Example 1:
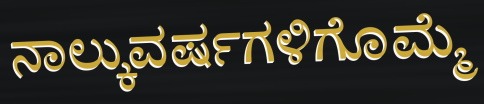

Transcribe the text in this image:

ನಾಲ್ಕುವರ್ಷಗಳಿಗೊಮ್ಮೆ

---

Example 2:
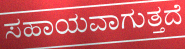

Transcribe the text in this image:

ಸಹಾಯವಾಗುತ್ತದೆ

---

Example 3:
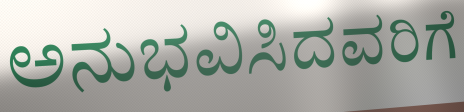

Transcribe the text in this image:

ಅನುಭವಿಸಿದವರಿಗೆ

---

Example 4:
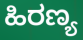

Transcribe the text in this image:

ಹಿರಣ್ಯ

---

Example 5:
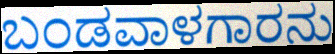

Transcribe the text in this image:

ಬಂಡವಾಳಗಾರನು